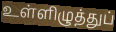
உள்ளிழுத்துப்